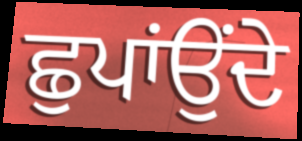
ਛੁਪਾਂਉਂਦੇ